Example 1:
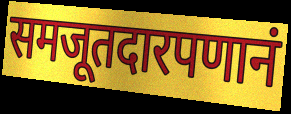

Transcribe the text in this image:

समजूतदारपणानं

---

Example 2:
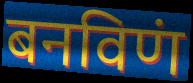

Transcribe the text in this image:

बनविणं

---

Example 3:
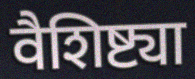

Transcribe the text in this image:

वैशिष्ट्या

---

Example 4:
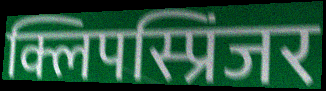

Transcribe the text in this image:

क्लिपस्प्रिंजर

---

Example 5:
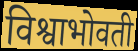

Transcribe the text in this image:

विश्वाभोवती